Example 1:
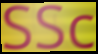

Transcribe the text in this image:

SSc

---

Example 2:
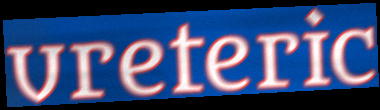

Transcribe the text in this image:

ureteric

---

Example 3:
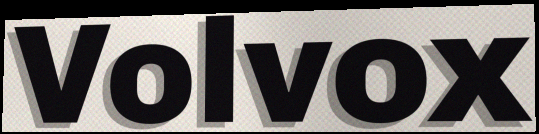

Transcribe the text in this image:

Volvox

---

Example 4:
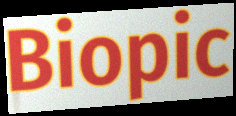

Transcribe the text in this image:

Biopic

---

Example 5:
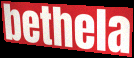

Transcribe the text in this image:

bethela